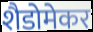
शैडोमेकर